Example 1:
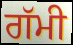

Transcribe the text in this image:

ਗੱਮੀ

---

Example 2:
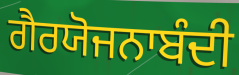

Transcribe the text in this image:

ਗੈਰਯੋਜਨਾਬੰਦੀ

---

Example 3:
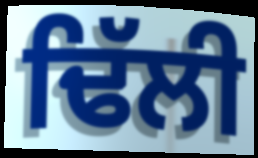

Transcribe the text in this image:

ਢਿੱਲੀ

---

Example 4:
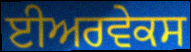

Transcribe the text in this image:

ਈਅਰਵੇਕਸ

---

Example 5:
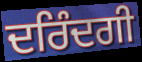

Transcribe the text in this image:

ਦਰਿੰਦਗੀ